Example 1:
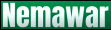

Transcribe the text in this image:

Nemawar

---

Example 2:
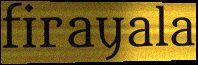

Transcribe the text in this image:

firayala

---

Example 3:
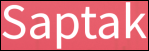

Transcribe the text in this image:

Saptak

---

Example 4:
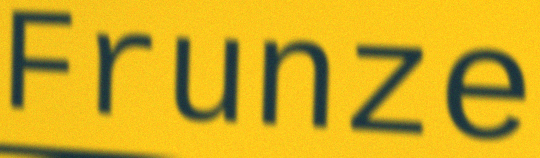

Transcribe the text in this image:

Frunze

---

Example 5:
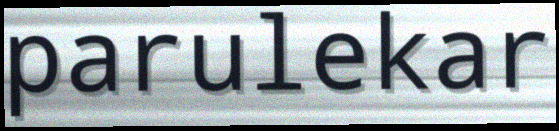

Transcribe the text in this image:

parulekar